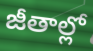
జీతాల్లో